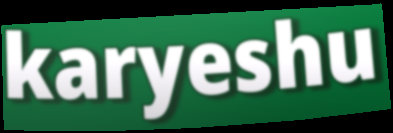
karyeshu